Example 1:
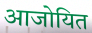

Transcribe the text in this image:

आजोयित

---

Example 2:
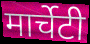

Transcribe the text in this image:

मार्चेटी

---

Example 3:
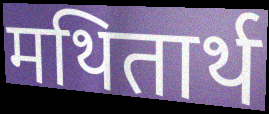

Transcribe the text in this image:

मथितार्थ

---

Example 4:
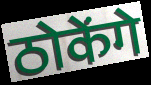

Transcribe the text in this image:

ठोकेंगे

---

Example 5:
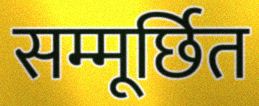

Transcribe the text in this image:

सम्मूर्छित